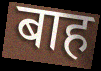
बाह